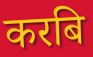
करबि